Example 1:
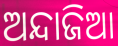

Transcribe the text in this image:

ଅନ୍ଦାଜିଆ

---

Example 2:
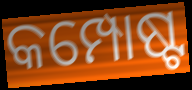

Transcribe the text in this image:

କମ୍ପୋଷ୍ଟ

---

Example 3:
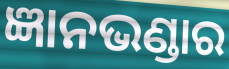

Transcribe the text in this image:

ଜ୍ଞାନଭଣ୍ଡାର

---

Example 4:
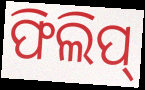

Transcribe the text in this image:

ଫିଲିପ୍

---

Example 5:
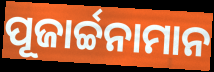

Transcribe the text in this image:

ପୂଜାର୍ଚ୍ଚନାମାନ